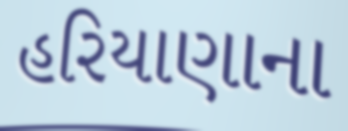
હરિયાણાના